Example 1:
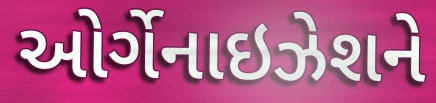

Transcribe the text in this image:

ઓર્ગેનાઇઝેશને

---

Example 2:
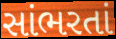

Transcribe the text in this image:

સાંભરતાં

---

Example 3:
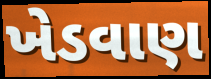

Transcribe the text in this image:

ખેડવાણ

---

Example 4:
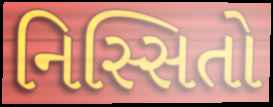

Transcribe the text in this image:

નિસ્સિતો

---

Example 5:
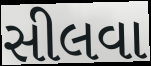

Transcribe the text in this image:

સીલવા